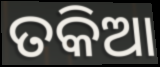
ତକିଆ